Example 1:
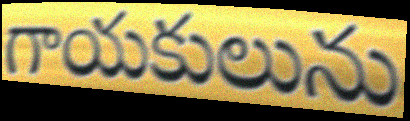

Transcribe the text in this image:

గాయకులును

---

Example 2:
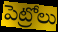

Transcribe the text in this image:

పెట్రోలు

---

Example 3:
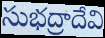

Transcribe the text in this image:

సుభద్రాదేవి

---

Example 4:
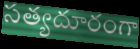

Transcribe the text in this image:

సత్యదూరంగా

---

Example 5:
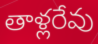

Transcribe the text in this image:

తాళ్లరేవు